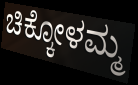
ಚಿಕ್ಕೋಳಮ್ಮ